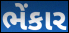
ભેંકાર